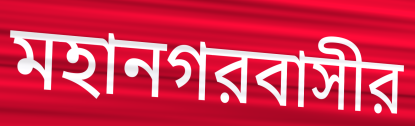
মহানগরবাসীর